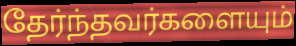
தேர்ந்தவர்களையும்